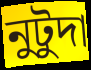
নুটুদা